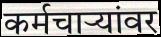
कर्मचार्‍यांवर